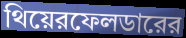
থিয়েরফেলডারের